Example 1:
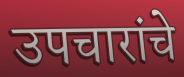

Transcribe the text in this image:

उपचारांचे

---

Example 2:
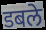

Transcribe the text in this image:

डबले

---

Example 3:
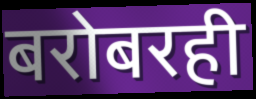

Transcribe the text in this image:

बरोबरही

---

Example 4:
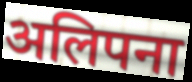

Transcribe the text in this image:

अलिपना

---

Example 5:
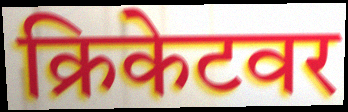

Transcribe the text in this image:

क्रिकेटवर